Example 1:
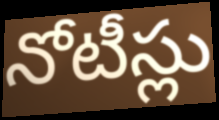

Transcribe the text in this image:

నోటీస్లు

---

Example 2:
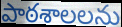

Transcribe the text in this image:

పాఠశాలలను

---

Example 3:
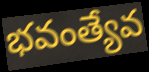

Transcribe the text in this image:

భవంత్యేవ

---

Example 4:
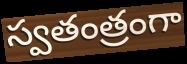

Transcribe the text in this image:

స్వతంత్రంగా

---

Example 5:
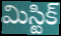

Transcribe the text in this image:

మిస్టిక్